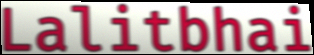
Lalitbhai